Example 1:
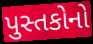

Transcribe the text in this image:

પુસ્તકોનો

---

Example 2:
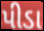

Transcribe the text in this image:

પીડા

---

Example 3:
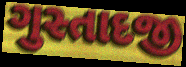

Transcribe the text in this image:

ગુસ્તાદજી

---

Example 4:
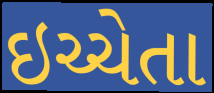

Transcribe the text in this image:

ઇચ્ચેતા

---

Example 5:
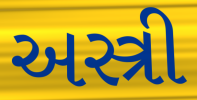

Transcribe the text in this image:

અસ્ત્રી